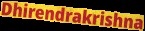
Dhirendrakrishna